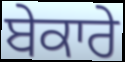
ਬੇਕਾਰੇ